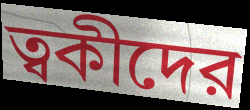
ত্বকীদের